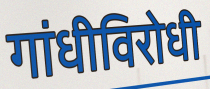
गांधीविरोधी